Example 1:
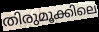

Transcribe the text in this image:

തിരുമൂക്കിലെ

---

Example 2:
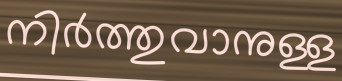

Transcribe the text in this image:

നിർത്തുവാനുള്ള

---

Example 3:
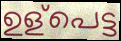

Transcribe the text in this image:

ഉള്പെട്ട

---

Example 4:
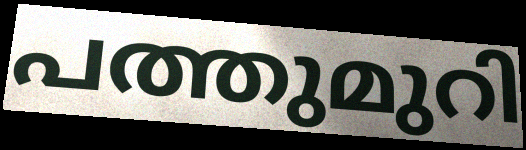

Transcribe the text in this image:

പത്തുമുറി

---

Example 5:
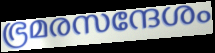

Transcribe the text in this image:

ഭ്രമരസന്ദേശം